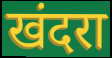
खंदरा